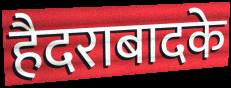
हैदराबादके